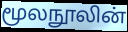
மூலநூலின்